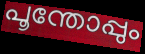
പൂന്തോപ്പും